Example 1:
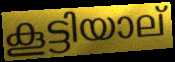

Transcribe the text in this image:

കൂട്ടിയാല്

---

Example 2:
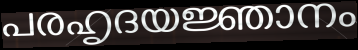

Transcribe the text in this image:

പരഹൃദയജ്ഞാനം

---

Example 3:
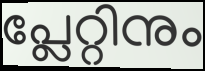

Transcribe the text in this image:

പ്ലേറ്റിനും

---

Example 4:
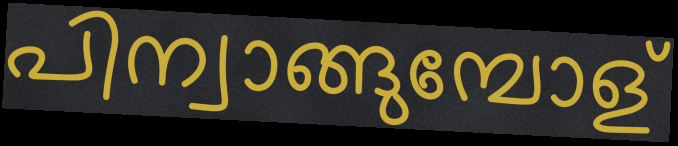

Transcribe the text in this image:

പിന്വാങ്ങുമ്പോള്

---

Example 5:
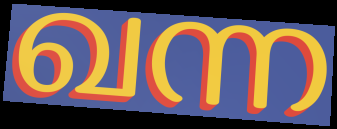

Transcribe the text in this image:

ഖന്ന